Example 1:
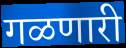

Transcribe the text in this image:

गळणारी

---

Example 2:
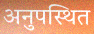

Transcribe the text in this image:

अनुपस्थित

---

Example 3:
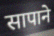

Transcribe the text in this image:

सापाने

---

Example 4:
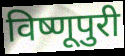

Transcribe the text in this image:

विष्णूपुरी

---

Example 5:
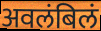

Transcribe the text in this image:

अवलंबिलं